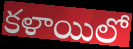
కళాయిలో